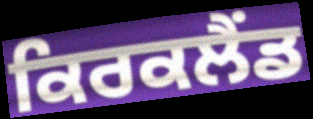
ਕਿਰਕਲੈਂਡ